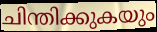
ചിന്തിക്കുകയും